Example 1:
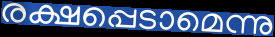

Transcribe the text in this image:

രക്ഷപ്പെടാമെന്നു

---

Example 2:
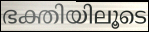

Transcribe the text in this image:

ഭക്തിയിലൂടെ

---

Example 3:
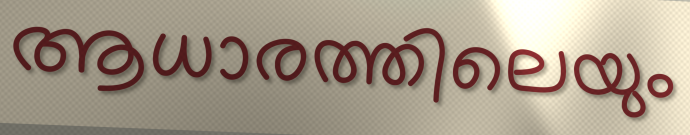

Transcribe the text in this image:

ആധാരത്തിലെയും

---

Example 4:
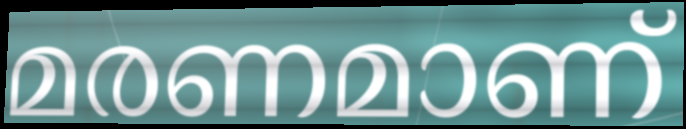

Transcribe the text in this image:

മരണമാണ്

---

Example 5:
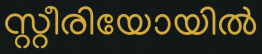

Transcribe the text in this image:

സ്റ്റീരിയോയിൽ